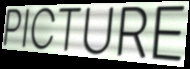
PICTURE